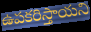
ఉపకరిస్తాయని